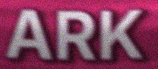
ARK